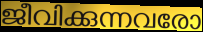
ജീവിക്കുന്നവരോ